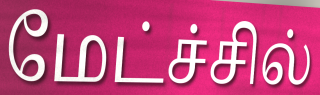
மேட்ச்சில்